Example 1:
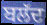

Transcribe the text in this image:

ਬਲੱਦ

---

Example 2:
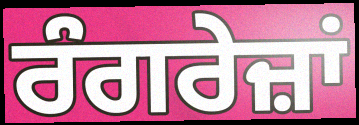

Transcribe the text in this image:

ਰੰਗਰੇਜ਼ਾਂ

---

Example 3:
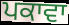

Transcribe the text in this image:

ਪਕਾਵਾ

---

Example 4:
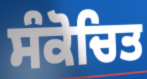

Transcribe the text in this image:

ਸੰਕੋਚਿਤ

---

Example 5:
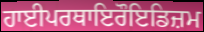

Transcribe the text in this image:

ਹਾਈਪਰਥਾਇਰੌਇਡਿਜ਼ਮ